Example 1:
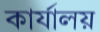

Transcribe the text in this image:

কার্যালয়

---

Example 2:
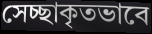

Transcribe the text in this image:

সেচ্ছাকৃতভাবে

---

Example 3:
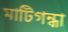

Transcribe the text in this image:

মাটিগন্ধা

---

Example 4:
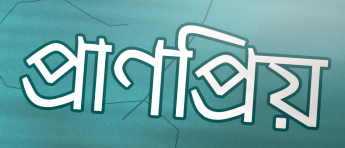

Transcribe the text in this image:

প্রাণপ্রিয়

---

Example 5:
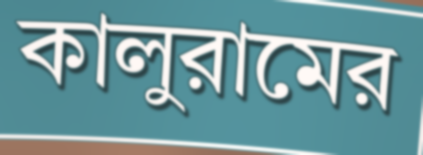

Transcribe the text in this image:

কালুরামের